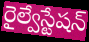
రైల్వేస్టేషన్